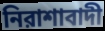
নিরাশাবাদী